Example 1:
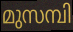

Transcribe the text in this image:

മുസമ്പി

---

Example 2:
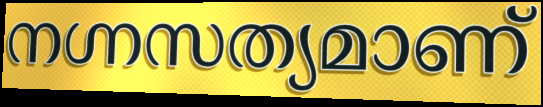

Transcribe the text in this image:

നഗ്നസത്യമാണ്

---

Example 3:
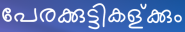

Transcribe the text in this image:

പേരക്കുട്ടികള്ക്കും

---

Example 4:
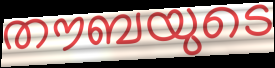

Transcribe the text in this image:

തൗബയുടെ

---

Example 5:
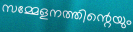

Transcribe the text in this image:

സമ്മേളനത്തിന്റെയും